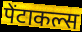
पेंटाकल्स